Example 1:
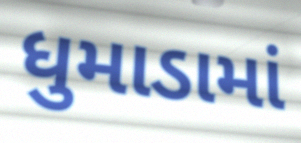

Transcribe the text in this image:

ધુમાડામાં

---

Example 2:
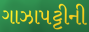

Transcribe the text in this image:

ગાઝાપટ્ટીની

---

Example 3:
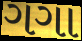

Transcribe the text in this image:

ગગા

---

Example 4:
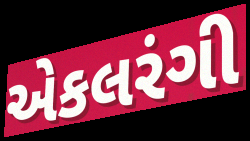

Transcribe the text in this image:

એકલરંગી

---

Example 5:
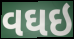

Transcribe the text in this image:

વઘઇ